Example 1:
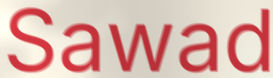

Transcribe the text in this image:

Sawad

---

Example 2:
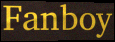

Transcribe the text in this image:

Fanboy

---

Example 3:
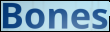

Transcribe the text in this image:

Bones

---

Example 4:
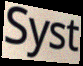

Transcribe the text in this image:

Syst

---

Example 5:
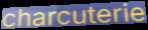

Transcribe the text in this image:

charcuterie